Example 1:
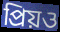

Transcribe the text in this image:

প্রিয়ও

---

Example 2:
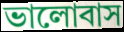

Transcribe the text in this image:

ভালোবাস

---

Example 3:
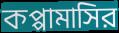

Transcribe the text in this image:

কপ্পামাসির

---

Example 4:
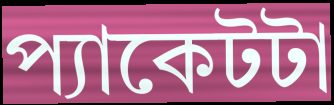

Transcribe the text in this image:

প্যাকেটটা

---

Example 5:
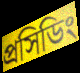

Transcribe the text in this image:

প্রসিডিং